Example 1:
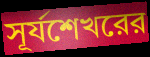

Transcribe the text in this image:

সূর্যশেখরের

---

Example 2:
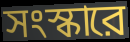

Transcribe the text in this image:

সংস্কারে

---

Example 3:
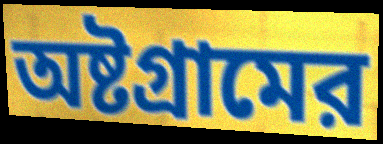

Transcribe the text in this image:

অষ্টগ্রামের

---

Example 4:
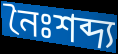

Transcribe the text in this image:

নৈঃশব্দ্য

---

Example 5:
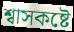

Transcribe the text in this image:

শ্বাসকষ্টে